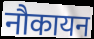
नौकायन